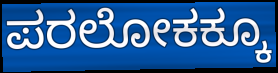
ಪರಲೋಕಕ್ಕೂ